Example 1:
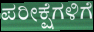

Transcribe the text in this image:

ಪರೀಕ್ಷೆಗಳಿಗೆ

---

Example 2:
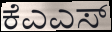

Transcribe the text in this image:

ಕೆಎಎಸ್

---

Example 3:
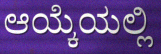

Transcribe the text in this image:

ಆಯ್ಕೆಯಲ್ಲಿ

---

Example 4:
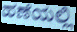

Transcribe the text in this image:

ಹಣೆಯಲ್ಲಿ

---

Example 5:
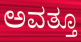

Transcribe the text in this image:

ಅವತ್ತೂ